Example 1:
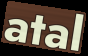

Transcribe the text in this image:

atal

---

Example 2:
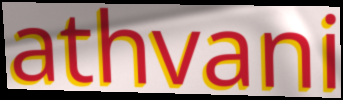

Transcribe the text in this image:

athvani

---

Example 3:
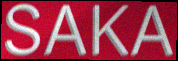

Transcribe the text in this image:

SAKA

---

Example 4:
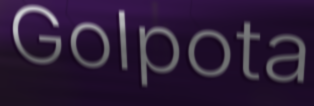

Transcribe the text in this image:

Golpota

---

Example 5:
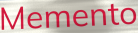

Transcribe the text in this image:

Memento